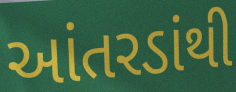
આંતરડાંથી